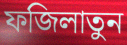
ফজিলাতুন